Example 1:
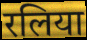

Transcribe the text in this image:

रलिया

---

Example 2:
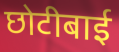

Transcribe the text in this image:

छोटीबाई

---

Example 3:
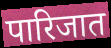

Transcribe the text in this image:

पारिजात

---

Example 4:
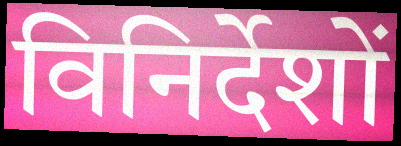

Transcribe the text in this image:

विनिर्देशों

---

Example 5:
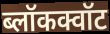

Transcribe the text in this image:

ब्लॉकक्वॉट